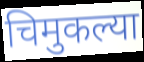
चिमुकल्या